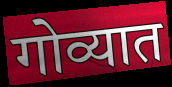
गोव्यात